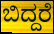
ಬಿದ್ದರೆ